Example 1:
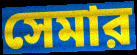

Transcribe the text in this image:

সেমার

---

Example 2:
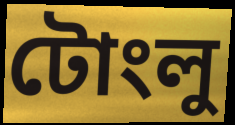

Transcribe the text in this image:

টোংলু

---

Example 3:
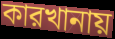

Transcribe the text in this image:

কারখানায়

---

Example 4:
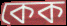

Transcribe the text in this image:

কেক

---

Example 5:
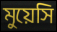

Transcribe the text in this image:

মুয়েসি